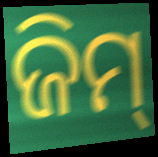
ଜିମ୍